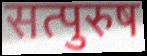
सत्पुरुष